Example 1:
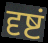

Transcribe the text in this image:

दृष्टं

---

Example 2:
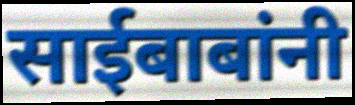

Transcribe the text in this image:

साईबाबांनी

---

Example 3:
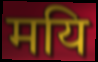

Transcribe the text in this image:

मयि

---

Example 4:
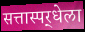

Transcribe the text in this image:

सत्तास्पर्धेला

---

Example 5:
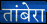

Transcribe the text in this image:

तांबेरा